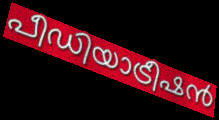
പീഡിയാട്രീഷൻ